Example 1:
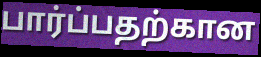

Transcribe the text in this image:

பார்ப்பதற்கான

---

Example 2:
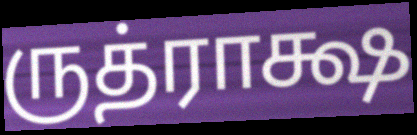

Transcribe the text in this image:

ருத்ராக்ஷ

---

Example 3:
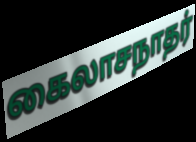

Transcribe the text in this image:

கைலாசநாதர்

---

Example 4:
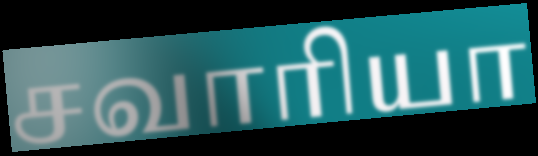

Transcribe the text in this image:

சவாரியா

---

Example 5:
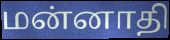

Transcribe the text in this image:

மன்னாதி